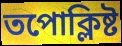
তপোক্লিষ্ট